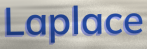
Laplace